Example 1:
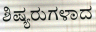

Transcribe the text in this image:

ಶಿಷ್ಯರುಗಳಾದ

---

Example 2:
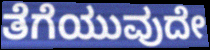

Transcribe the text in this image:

ತೆಗೆಯುವುದೇ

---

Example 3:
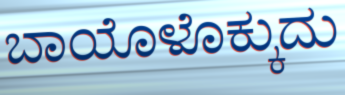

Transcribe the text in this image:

ಬಾಯೊಳೊಕ್ಕುದು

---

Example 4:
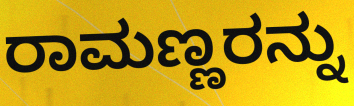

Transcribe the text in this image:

ರಾಮಣ್ಣರನ್ನು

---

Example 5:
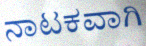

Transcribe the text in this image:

ನಾಟಕವಾಗಿ